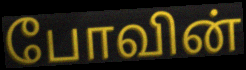
போவின்